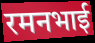
रमनभाई